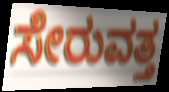
ಸೇರುವತ್ತ